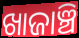
ଖାଜାଞ୍ଚି